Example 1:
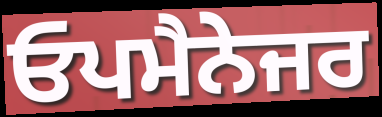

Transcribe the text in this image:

ਓਪਮੈਨੇਜਰ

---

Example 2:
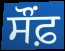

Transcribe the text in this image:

ਸੌਂਫ਼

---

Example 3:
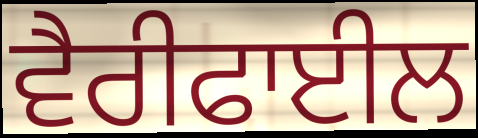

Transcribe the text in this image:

ਵੈਰੀਫਾਈਲ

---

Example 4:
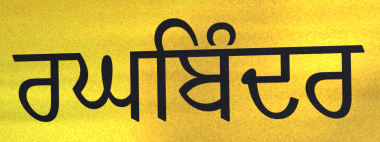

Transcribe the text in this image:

ਰਘਬਿੰਦਰ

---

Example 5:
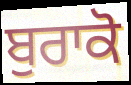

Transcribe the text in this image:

ਬੁਰਾਕੋ